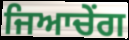
ਜਿਆਚੇਂਗ